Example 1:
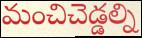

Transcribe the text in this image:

మంచిచెడ్డల్ని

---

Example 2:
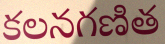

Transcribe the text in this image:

కలనగణిత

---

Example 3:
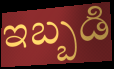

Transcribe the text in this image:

ఇబ్బడి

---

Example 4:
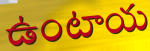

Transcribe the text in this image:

ఉంటాయ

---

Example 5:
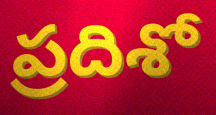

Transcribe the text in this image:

ప్రదిశో